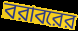
বরাবরের